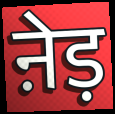
ऩेड़